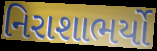
નિરાશાભર્યો